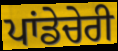
ਪਾਂਡੇਚੇਰੀ